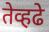
तेव्हढे